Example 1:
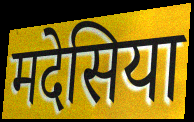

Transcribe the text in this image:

मदेसिया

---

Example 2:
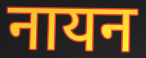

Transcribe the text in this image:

नायन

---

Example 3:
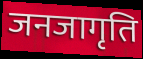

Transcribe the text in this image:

जनजागृति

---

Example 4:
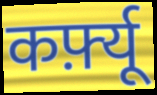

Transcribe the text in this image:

कर्फ़्यू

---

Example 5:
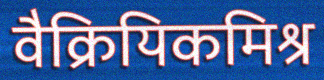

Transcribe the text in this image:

वैक्रियिकमिश्र